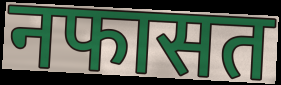
नफासत